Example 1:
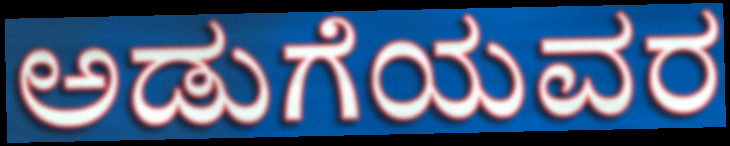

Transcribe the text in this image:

ಅಡುಗೆಯವರ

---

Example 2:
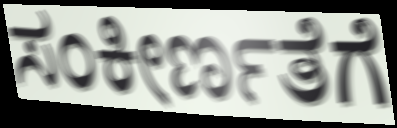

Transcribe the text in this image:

ಸಂಕೀರ್ಣತೆಗೆ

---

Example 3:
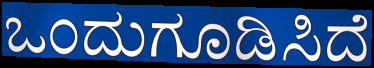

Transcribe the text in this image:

ಒಂದುಗೂಡಿಸಿದೆ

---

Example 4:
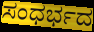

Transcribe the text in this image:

ಸಂಧರ್ಭದ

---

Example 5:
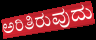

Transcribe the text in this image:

ಅರಿತಿರುವುದು